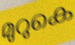
മുറുകെ